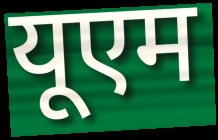
यूएम